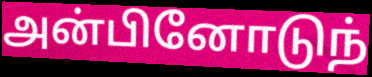
அன்பினோடுந்